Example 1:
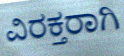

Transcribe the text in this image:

ವಿರಕ್ತರಾಗಿ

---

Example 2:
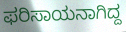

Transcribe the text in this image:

ಫರಿಸಾಯನಾಗಿದ್ದ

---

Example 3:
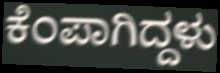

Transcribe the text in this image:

ಕೆಂಪಾಗಿದ್ದಳು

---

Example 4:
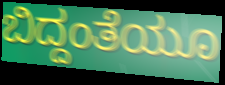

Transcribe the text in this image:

ಬಿದ್ದಂತೆಯೂ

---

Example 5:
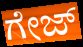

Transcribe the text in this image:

ಗೇಜ್